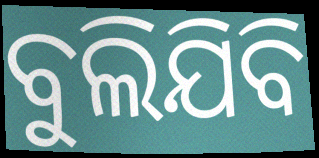
ବୁଲିଯିବି